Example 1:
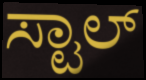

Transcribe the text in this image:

ಸ್ಟಾಲ್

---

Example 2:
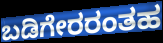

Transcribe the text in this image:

ಬಡಿಗೇರರಂತಹ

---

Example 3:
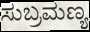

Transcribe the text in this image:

ಸುಬ್ರಮಣ್ಯ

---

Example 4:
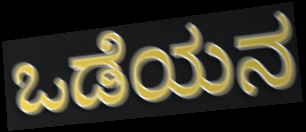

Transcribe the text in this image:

ಒಡೆಯನ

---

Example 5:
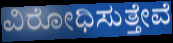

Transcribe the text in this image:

ವಿರೋಧಿಸುತ್ತೇವೆ